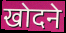
खोदने